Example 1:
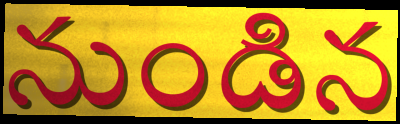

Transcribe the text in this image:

నుండిన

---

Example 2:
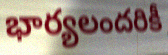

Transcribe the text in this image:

భార్యలందరికీ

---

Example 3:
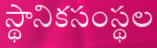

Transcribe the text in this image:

స్థానికసంస్థల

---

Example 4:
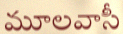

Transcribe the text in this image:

మూలవాసీ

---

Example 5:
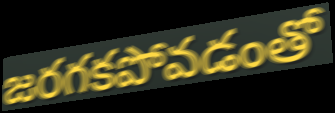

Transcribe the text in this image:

జరగకపోవడంతో